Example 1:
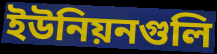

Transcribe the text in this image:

ইউনিয়নগুলি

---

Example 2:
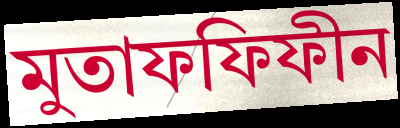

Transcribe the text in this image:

মুতাফফিফীন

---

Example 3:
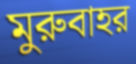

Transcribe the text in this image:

মুরুবাহর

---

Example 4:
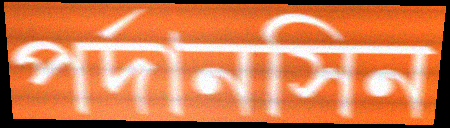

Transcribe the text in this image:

পর্দানসিন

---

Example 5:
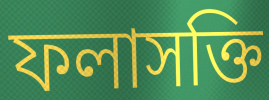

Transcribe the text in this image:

ফলাসক্তি